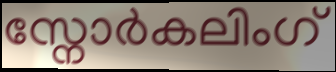
സ്നോർകലിംഗ്